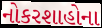
નોકરશાહોના